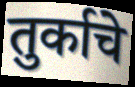
तुर्काचे